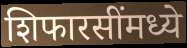
शिफारसींमध्ये